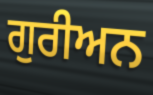
ਗੁਰੀਅਨ